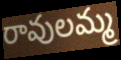
రావులమ్మ